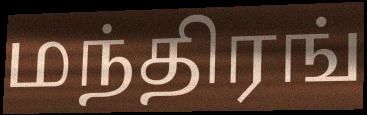
மந்திரங்